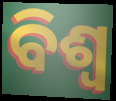
ବିଶ୍ୱ